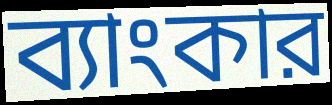
ব্যাংকার